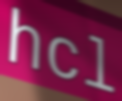
hcl